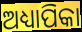
ଅଧ୍ୟାପିକା